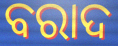
ବରାଦ